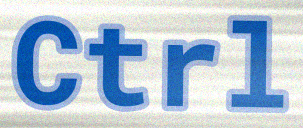
Ctrl